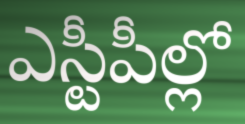
ఎస్టీపీల్లో